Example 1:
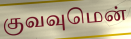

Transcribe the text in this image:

குவவுமென்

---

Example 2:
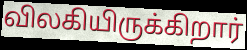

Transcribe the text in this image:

விலகியிருக்கிறார்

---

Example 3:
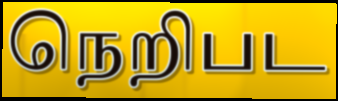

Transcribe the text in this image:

நெறிபட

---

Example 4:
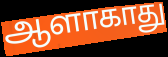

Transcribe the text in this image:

ஆளாகாது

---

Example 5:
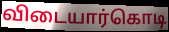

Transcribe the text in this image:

விடையார்கொடி